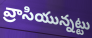
వ్రాసియున్నట్టు